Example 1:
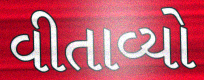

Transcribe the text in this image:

વીતાવ્યો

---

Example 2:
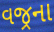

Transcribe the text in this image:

વજ્રના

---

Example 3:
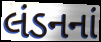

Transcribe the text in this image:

લંડનનાં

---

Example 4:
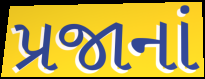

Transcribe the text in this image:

પ્રજાનાં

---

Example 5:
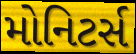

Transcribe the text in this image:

મોનિટર્સ